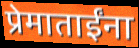
प्रेमाताईंना